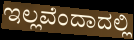
ಇಲ್ಲವೆಂದಾದಲ್ಲಿ